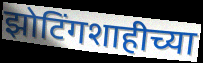
झोटिंगशाहीच्या